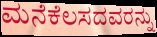
ಮನೆಕೆಲಸದವರನ್ನು